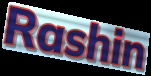
Rashin